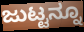
ಜುಟ್ಟನ್ನೂ